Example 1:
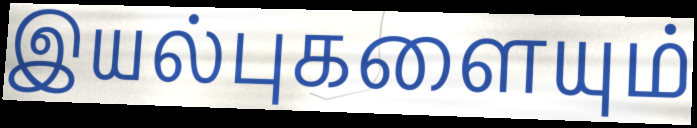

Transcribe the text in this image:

இயல்புகளையும்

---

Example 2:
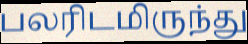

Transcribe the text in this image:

பலரிடமிருந்து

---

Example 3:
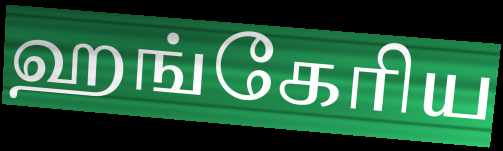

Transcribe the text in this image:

ஹங்கேரிய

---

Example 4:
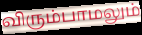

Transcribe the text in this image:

விரும்பாமலும்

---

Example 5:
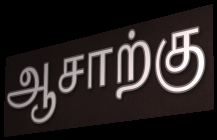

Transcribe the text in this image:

ஆசாற்கு